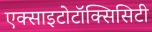
एक्साइटोटॉक्सिसिटी